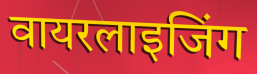
वायरलाइजिंग